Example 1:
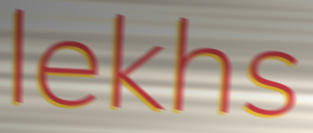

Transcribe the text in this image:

lekhs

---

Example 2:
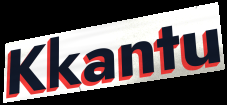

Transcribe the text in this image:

Kkantu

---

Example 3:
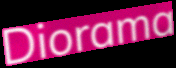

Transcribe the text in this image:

Diorama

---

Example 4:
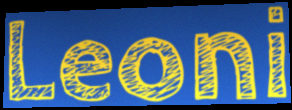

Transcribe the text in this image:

Leoni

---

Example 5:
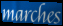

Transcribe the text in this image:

marches